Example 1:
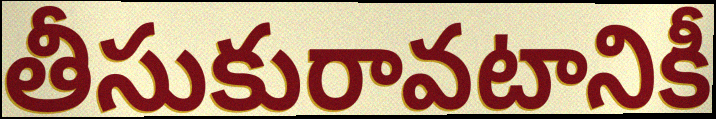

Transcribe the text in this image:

తీసుకురావటానికీ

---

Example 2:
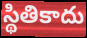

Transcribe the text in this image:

స్థితికాదు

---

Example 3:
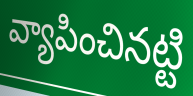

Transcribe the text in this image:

వ్యాపించినట్టి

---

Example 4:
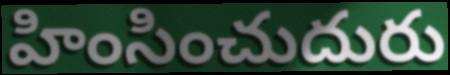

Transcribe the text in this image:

హింసించుదురు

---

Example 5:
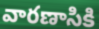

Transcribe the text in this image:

వారణాసికి